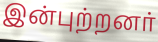
இன்புற்றனர்